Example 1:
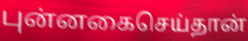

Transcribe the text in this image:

புன்னகைசெய்தான்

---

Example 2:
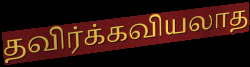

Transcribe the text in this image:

தவிர்க்கவியலாத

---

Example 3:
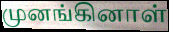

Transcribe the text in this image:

முனங்கினாள்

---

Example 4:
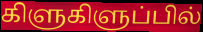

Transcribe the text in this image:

கிளுகிளுப்பில்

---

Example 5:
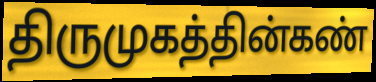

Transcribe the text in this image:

திருமுகத்தின்கண்